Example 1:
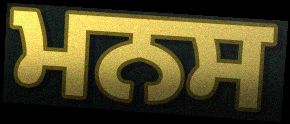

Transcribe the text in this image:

ਮਨਸ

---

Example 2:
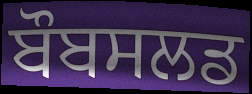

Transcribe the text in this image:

ਬੌਬਸਲਡ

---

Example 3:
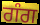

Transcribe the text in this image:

ਗੰਗ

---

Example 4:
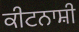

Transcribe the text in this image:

ਕੀਟਨਾਸ਼ੀ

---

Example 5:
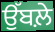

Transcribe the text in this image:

ਉੱਬਲ਼ੇ